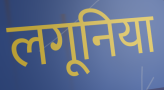
लगूनिया